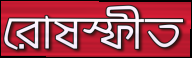
রোষস্ফীত